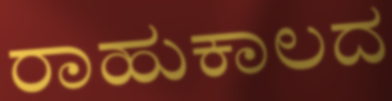
ರಾಹುಕಾಲದ